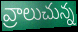
వ్రాలుచున్న